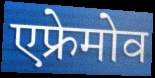
एफ्रेमोव